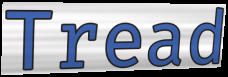
Tread